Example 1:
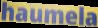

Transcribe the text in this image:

haumela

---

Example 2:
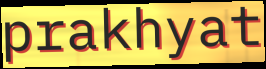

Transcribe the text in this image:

prakhyat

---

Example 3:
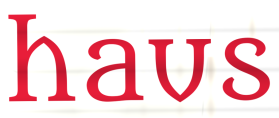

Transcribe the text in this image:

haus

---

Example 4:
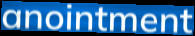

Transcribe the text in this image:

anointment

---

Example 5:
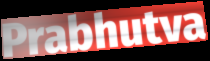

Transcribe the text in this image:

Prabhutva